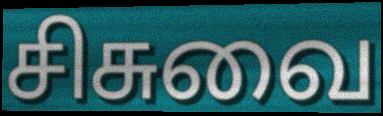
சிசுவை